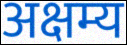
अक्षम्य